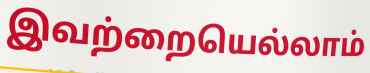
இவற்றையெல்லாம்